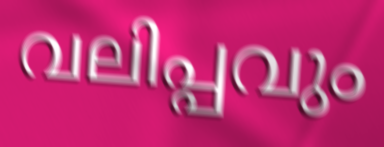
വലിപ്പവും